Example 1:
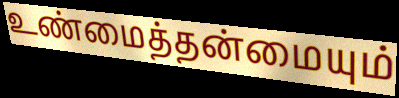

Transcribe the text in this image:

உண்மைத்தன்மையும்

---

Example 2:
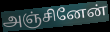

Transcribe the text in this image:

அஞ்சினேன்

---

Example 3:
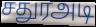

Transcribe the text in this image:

சதுரஅடி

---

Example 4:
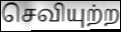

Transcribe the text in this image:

செவியுற்ற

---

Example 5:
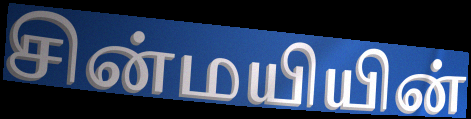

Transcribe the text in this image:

சின்மயியின்